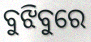
ବୁଝିବୁରେ